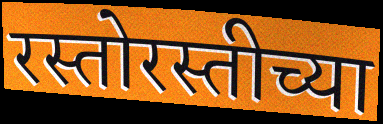
रस्तोरस्तीच्या